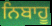
ਨਿਬਾਹੂ